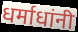
धर्माधांनी